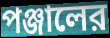
পঞ্জালের